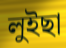
লুইছা